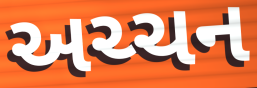
અચ્ચન